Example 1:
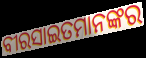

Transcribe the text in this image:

ବୀରସାଇତମାନଙ୍କର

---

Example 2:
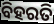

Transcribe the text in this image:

ବିହରତି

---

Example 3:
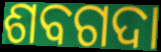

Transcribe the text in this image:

ଶବଗଦା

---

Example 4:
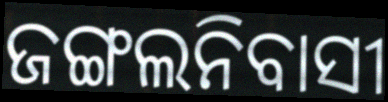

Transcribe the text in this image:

ଜଙ୍ଗଲନିବାସୀ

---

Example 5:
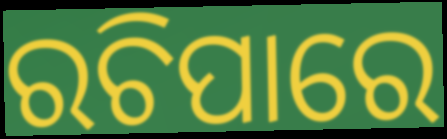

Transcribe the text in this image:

ରଚିପାରେ